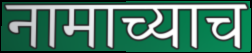
नामाच्याच